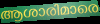
ആശാരിമാരെ